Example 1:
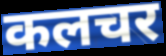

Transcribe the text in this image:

कलचर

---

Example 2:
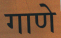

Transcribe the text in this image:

गाणे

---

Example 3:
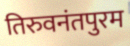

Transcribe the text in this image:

तिरुवनंतपुरम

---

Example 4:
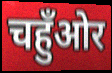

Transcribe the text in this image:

चहुँओर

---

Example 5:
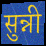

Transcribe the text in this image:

सुन्नी